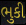
ભુકી